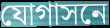
যোগাসনে